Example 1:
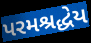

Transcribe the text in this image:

પરમશ્રદ્ધેય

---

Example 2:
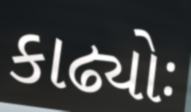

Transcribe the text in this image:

કાઢ્યોઃ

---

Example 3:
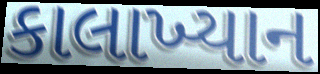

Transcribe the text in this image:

કાલાખ્યાન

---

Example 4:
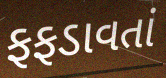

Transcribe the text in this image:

ફફડાવતાં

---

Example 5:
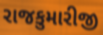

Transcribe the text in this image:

રાજકુમારીજી